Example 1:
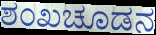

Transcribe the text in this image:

ಶಂಖಚೂಡನ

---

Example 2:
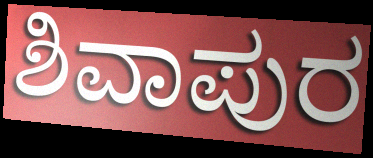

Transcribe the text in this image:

ಶಿವಾಪುರ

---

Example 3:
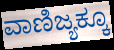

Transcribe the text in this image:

ವಾಣಿಜ್ಯಕ್ಕೂ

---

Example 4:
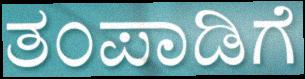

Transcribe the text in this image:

ತಂಪಾಡಿಗೆ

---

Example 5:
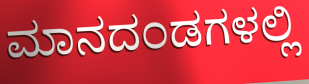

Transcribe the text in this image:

ಮಾನದಂಡಗಳಲ್ಲಿ